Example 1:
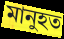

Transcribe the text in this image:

মানুহত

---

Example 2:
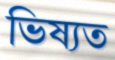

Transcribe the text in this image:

ভিষ্যত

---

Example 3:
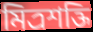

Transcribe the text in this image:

মিত্ৰশক্তি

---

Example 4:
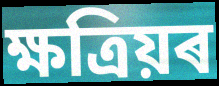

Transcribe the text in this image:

ক্ষত্ৰিয়ৰ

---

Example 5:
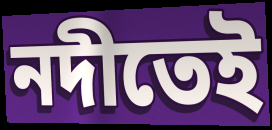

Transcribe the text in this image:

নদীতেই